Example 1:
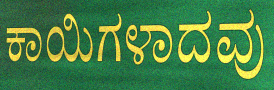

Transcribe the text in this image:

ಕಾಯಿಗಳಾದವು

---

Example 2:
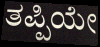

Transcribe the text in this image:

ತಪ್ಪಿಯೇ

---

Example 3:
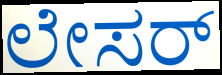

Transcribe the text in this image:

ಲೇಸರ್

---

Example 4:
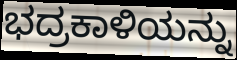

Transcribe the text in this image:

ಭದ್ರಕಾಳಿಯನ್ನು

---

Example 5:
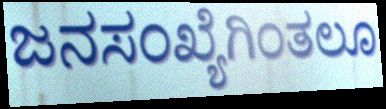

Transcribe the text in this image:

ಜನಸಂಖ್ಯೆಗಿಂತಲೂ